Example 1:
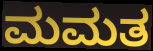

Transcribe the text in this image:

ಮಮತ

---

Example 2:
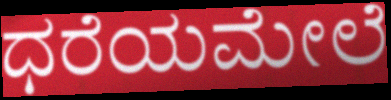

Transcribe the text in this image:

ಧರೆಯಮೇಲೆ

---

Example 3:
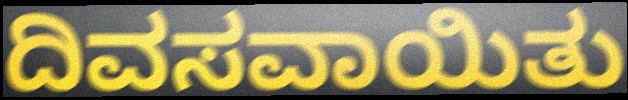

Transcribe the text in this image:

ದಿವಸವಾಯಿತು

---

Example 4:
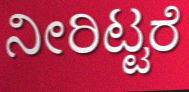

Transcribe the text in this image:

ನೀರಿಟ್ಟರೆ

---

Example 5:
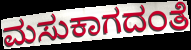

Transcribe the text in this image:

ಮಸುಕಾಗದಂತೆ